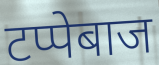
टप्पेबाज